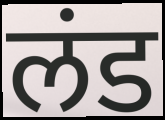
लंड